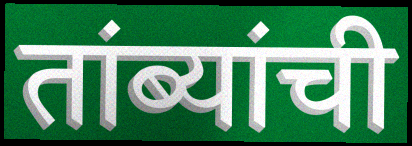
तांब्यांची